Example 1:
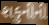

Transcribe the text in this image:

શકુનીની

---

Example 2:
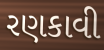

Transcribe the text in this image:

રણકાવી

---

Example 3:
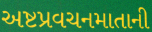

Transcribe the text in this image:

અષ્ટપ્રવચનમાતાની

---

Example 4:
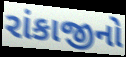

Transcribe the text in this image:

રાંકાજીનો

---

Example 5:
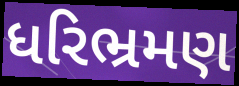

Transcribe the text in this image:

ધરિભ્રમણ